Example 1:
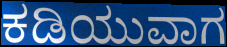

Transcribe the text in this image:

ಕಡಿಯುವಾಗ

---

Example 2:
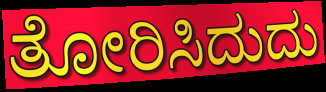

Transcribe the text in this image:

ತೋರಿಸಿದುದು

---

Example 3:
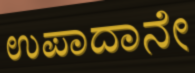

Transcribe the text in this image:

ಉಪಾದಾನೇ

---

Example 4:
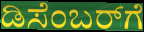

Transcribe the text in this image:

ಡಿಸೆಂಬರ್‌ಗೆ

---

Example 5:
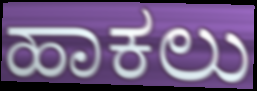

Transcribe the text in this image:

ಹಾಕಲು